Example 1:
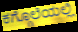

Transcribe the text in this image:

ಕಗ್ಗೊಲೆಯಲ್ಲಿ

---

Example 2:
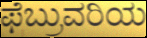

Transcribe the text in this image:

ಫೆಬ್ರುವರಿಯ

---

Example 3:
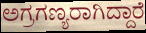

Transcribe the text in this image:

ಅಗ್ರಗಣ್ಯರಾಗಿದ್ದಾರೆ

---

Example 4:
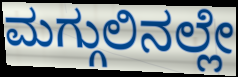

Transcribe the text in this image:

ಮಗ್ಗುಲಿನಲ್ಲೇ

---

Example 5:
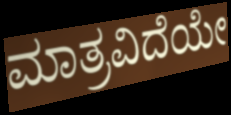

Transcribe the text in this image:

ಮಾತ್ರವಿದೆಯೇ